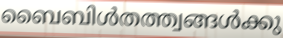
ബൈബിൾതത്ത്വങ്ങൾക്കു